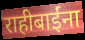
राहीबाईंना